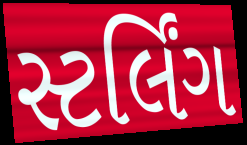
સ્ટર્લિંગ